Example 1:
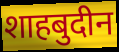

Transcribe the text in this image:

शाहबुदीन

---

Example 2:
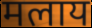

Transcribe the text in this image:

मलाय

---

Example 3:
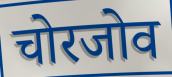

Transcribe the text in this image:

चोरजोव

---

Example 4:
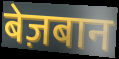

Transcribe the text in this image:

बेज़बान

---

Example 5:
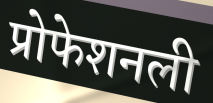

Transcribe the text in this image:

प्रोफेशनली